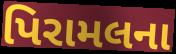
પિરામલના